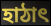
হাঠাৎ